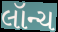
લૉન્ચ